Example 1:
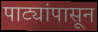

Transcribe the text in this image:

पाट्यांपासून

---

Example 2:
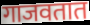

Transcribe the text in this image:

गाजवतात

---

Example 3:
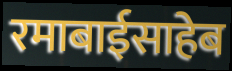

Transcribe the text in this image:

रमाबाईसाहेब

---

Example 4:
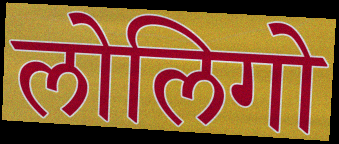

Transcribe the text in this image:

लोलिगो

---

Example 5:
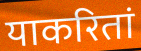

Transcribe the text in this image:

याकरितां